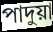
পাদুয়া